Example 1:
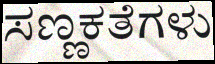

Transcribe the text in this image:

ಸಣ್ಣಕತೆಗಳು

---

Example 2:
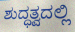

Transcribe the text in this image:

ಶುದ್ಧತ್ವದಲ್ಲಿ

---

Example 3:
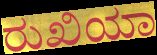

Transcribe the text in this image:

ರುಖಿಯಾ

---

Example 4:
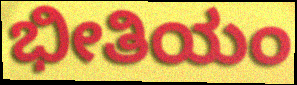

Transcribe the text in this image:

ಭೀತಿಯಂ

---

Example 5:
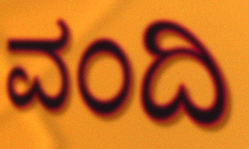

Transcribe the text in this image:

ವಂದಿ